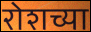
रोशच्या